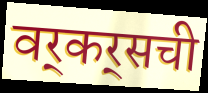
वर्कर्सची